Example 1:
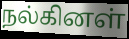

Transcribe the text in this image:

நல்கினள்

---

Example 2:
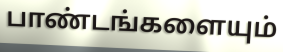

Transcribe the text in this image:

பாண்டங்களையும்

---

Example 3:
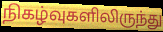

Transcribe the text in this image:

நிகழ்வுகளிலிருந்து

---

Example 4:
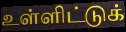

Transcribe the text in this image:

உள்ளிட்டுக்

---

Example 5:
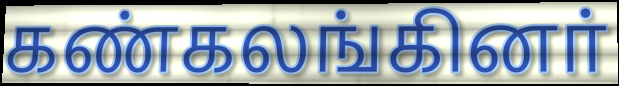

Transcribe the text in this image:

கண்கலங்கினர்